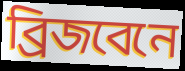
ব্রিজবেনে